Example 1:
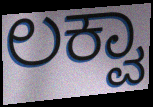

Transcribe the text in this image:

ಲಕ್ವಾ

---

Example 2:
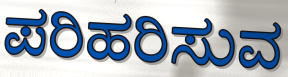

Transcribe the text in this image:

ಪರಿಹರಿಸುವ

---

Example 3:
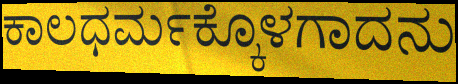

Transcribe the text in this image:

ಕಾಲಧರ್ಮಕ್ಕೊಳಗಾದನು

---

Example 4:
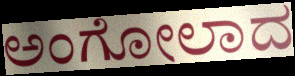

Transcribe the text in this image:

ಅಂಗೋಲಾದ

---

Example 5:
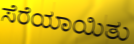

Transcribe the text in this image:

ಸೆರೆಯಾಯಿತು